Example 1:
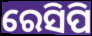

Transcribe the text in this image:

ରେସିପି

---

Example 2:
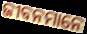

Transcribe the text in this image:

ଜୀବନମାନେ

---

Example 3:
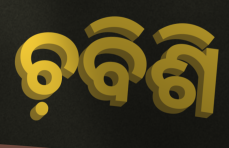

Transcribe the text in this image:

ଚ଼ବିଶି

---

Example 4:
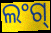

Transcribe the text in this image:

ଲଂଗ୍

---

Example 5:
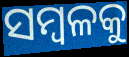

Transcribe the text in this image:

ସମ୍ବଳକୁ